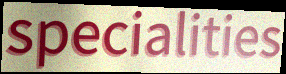
specialities